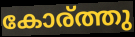
കോര്ത്തു